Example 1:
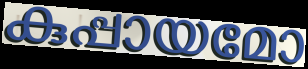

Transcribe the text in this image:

കുപ്പായമോ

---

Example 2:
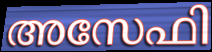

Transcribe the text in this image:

അസേഫി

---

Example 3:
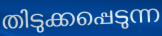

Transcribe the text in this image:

തിടുക്കപ്പെടുന്ന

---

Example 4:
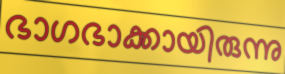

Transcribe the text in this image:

ഭാഗഭാക്കായിരുന്നു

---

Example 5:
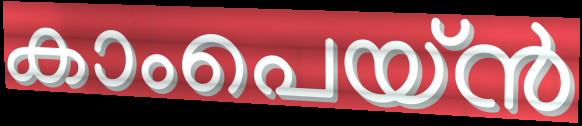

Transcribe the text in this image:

കാംപെയ്ൻ